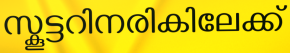
സ്കൂട്ടറിനരികിലേക്ക്